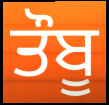
ਤੌਬੂ